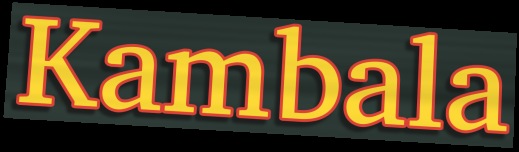
Kambala